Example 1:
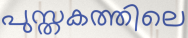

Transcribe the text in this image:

പുസ്തകത്തിലെ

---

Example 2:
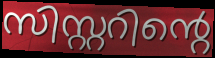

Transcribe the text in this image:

സിസ്റ്ററിന്റെ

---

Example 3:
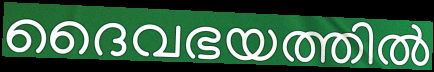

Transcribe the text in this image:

ദൈവഭയത്തിൽ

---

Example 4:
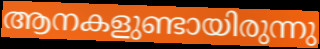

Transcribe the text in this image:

ആനകളുണ്ടായിരുന്നു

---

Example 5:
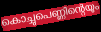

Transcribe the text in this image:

കൊച്ചുപെണ്ണിന്റെയും